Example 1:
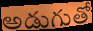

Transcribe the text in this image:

అడుగుతో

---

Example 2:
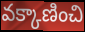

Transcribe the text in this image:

వక్కాణించి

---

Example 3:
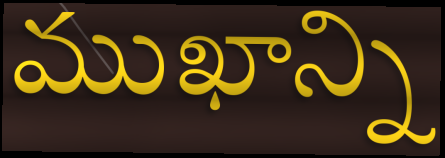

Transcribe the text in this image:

ముఖాన్ని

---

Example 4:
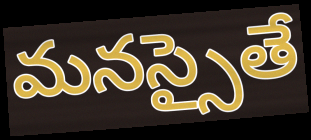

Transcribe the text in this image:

మనస్సైతే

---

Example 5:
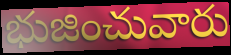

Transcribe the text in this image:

భుజించువారు